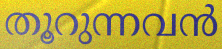
തൂറുന്നവൻ